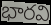
భారవి